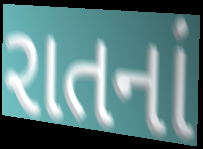
રાતનાં